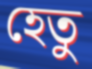
হেতু